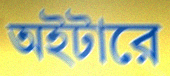
অইটারে